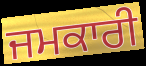
ਜਮਕਾਰੀ